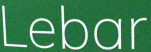
Lebar